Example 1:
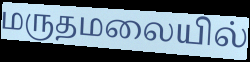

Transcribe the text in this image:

மருதமலையில்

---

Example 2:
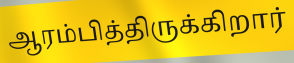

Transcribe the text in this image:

ஆரம்பித்திருக்கிறார்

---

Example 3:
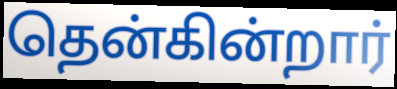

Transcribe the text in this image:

தென்கின்றார்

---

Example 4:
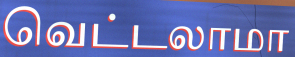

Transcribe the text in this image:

வெட்டலாமா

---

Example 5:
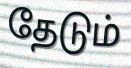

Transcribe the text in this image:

தேடும்